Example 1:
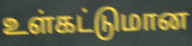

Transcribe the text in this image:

உள்கட்டுமான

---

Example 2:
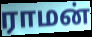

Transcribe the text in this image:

ராமன்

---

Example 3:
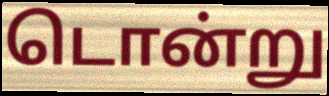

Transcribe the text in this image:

டொன்று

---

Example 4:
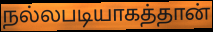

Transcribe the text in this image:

நல்லபடியாகத்தான்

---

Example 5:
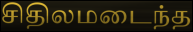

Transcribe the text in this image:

சிதிலமடைந்த